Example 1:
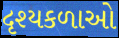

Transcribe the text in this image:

દૃશ્યકળાઓ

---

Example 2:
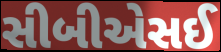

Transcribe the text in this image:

સીબીએસઈ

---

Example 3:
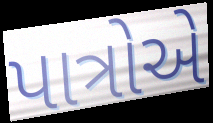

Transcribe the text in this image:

પાત્રોએ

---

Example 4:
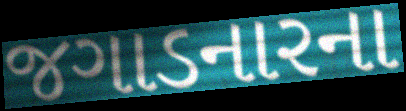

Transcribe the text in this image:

જગાડનારના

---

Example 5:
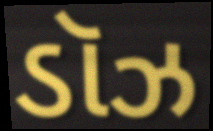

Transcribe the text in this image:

ડૉઝ